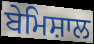
ਬੇਮਿਸ਼ਾਲ